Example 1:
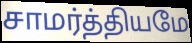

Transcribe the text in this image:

சாமர்த்தியமே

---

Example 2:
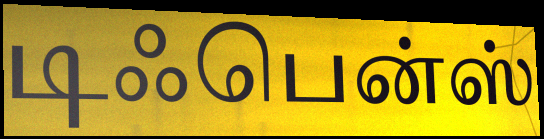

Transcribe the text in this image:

டிஃபென்ஸ்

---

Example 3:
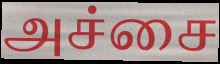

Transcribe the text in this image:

அச்சை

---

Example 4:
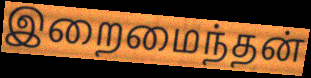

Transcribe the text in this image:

இறைமைந்தன்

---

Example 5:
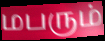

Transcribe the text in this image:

மபரும்